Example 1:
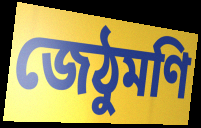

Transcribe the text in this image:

জেঠুমণি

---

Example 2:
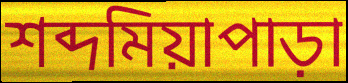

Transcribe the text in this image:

শব্দমিয়াপাড়া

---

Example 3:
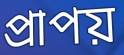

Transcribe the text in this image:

প্রাপয়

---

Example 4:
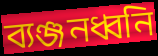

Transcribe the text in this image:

ব্যঞ্জনধ্বনি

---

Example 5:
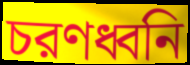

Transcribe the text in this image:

চরণধ্বনি